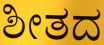
ಶೀತದ